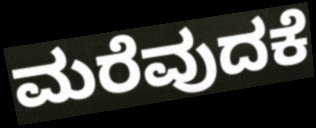
ಮರೆವುದಕೆ